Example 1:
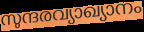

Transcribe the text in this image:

സുന്ദരവ്യാഖ്യാനം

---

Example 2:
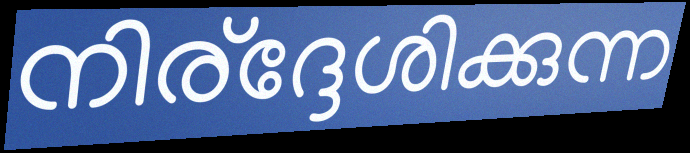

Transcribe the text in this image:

നിര്ദ്ദേശിക്കുന്ന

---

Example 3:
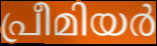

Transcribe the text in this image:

പ്രീമിയർ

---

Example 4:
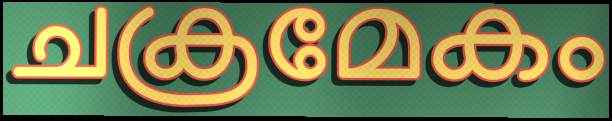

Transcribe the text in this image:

ചക്രമേകം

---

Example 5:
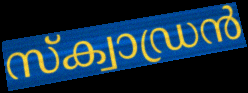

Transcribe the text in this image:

സ്ക്വാഡ്രൻ